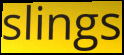
slings